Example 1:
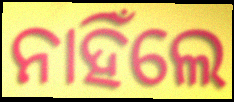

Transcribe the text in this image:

ନାହିଁଲେ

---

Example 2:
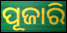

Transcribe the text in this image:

ପୂଜାରି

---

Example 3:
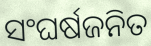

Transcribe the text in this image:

ସଂଘର୍ଷଜନିତ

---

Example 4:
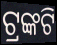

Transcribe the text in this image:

ଟ୍ରଙ୍କଟି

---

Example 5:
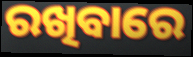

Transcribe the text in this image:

ରଖିବାରେ